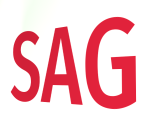
SAG